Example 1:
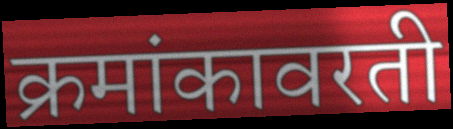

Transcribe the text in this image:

क्रमांकावरती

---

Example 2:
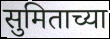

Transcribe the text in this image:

सुमिताच्या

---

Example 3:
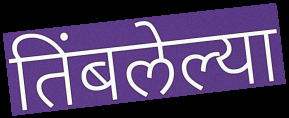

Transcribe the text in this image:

तिंबलेल्या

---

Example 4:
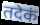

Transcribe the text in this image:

तदेकं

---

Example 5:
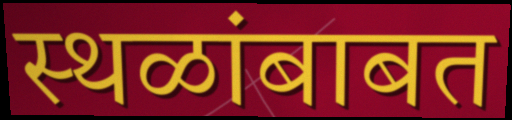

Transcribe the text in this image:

स्थळांबाबत